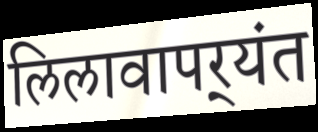
लिलावापर्यंत